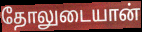
தோலுடையான்